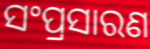
ସଂପ୍ରସାରଣ